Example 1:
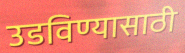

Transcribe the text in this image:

उडविण्यासाठी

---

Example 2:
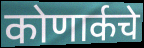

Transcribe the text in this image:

कोणार्कचे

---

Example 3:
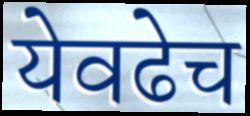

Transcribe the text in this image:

येवढेच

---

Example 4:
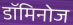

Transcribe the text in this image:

डॉमिनोज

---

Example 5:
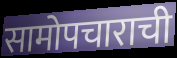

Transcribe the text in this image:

सामोपचाराची